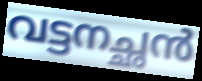
വട്ടനച്ഛൻ